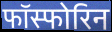
फॉस्फोरिन